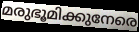
മരുഭൂമിക്കുനേരെ